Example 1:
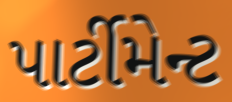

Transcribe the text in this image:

પાર્ટીમેન્ટ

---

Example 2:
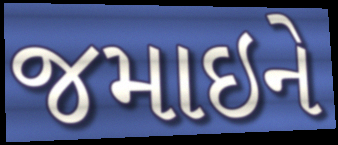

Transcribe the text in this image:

જમાઇને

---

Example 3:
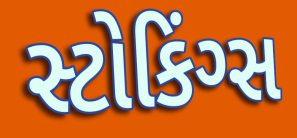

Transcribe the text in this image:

સ્ટોકિંગ્સ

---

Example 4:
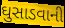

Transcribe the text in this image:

ઘુસાડવાની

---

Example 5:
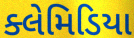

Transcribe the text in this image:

ક્લેમિડિયા